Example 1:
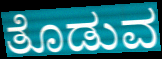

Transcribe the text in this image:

ತೊಡುವ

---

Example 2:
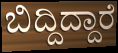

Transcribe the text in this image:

ಬಿದ್ದಿದ್ದಾರೆ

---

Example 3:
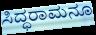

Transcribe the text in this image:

ಸಿದ್ಧರಾಮನೂ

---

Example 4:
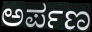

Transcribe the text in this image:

ಅರ್ಪಣ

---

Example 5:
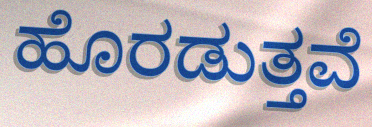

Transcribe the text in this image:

ಹೊರಡುತ್ತವೆ